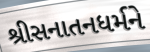
શ્રીસનાતનધર્મને